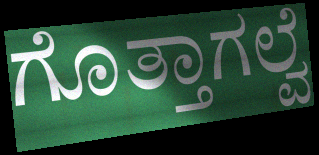
ಗೊತ್ತಾಗಲ್ವೆ